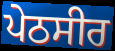
ਪੇਠਸੀਰ